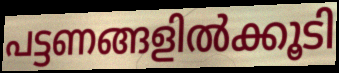
പട്ടണങ്ങളിൽക്കൂടി